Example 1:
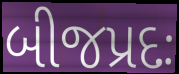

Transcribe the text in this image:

બીજપ્રદઃ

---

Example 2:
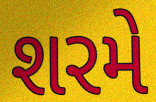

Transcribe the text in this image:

શરમે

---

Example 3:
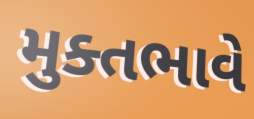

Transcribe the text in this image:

મુક્તભાવે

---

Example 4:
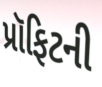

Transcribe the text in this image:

પ્રૉફિટની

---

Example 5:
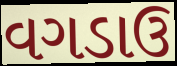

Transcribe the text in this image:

વગડાઉ